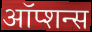
ऑप्शन्स